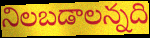
నిలబడాలన్నది